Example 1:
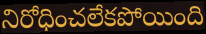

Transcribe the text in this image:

నిరోధించలేకపోయింది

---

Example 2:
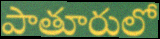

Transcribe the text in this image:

పాతూరులో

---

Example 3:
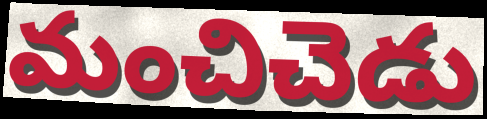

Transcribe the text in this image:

మంచిచెడు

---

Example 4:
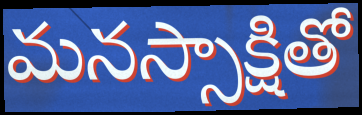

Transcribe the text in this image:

మనస్సాక్షితో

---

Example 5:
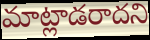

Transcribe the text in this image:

మాట్లాడరాదని